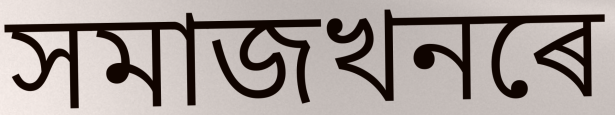
সমাজখনৰে